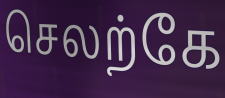
செலற்கே